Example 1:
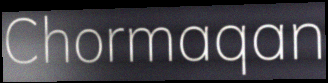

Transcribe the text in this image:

Chormaqan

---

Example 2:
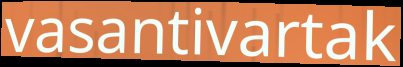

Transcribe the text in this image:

vasantivartak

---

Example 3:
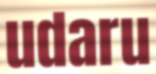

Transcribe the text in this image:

udaru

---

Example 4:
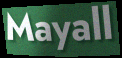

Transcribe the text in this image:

Mayall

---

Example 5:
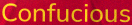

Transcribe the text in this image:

Confucious